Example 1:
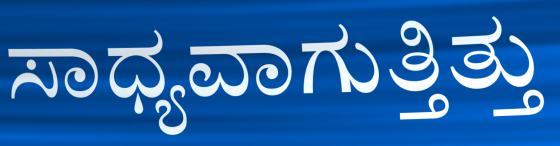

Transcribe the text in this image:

ಸಾಧ್ಯವಾಗುತ್ತಿತ್ತು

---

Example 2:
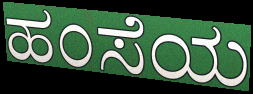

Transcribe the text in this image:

ಹಂಸೆಯ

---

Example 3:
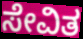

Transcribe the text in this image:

ಸೇವಿತ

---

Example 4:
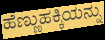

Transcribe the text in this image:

ಹೆಣ್ಣುಹಕ್ಕಿಯನ್ನು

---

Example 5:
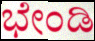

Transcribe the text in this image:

ಭೇಂಡಿ